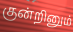
குன்றினும்